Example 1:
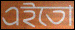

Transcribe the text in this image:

এইতো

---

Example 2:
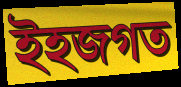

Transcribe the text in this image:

ইহজগত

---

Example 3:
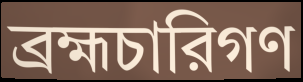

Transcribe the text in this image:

ব্রহ্মচারিগণ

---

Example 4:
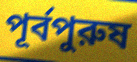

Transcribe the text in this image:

পূর্বপুরুষ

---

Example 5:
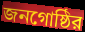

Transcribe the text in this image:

জনগোষ্ঠির